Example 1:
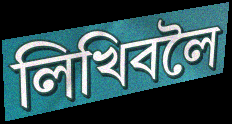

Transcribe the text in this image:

লিখিবলৈ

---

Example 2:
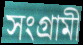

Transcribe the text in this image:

সংগ্ৰামী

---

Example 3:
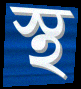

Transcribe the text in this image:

স্থ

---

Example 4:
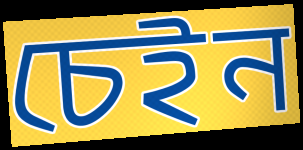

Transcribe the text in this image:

চেইন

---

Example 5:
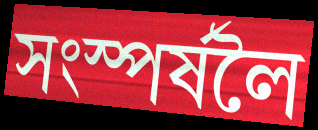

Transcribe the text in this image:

সংস্পৰ্ষলৈ